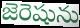
జెరెషును